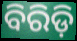
ବିରିଡ଼ି